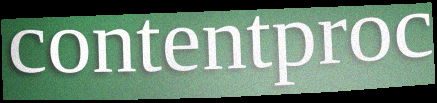
contentproc